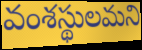
వంశస్థులమని